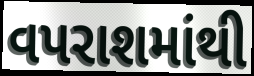
વપરાશમાંથી